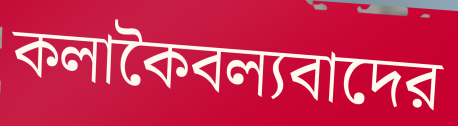
কলাকৈবল্যবাদের